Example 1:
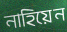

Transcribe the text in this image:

নাহিয়েন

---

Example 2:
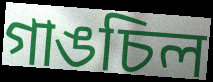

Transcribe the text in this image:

গাঙচিল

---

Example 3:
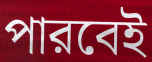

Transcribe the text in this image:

পারবেই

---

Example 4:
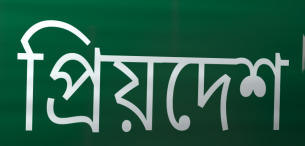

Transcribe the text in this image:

প্রিয়দেশ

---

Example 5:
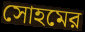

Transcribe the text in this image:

সোহমের